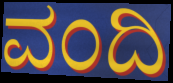
ವಂದಿ